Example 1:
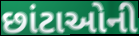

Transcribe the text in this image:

છાંટાઓની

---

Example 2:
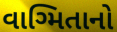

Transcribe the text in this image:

વાગ્મિતાનો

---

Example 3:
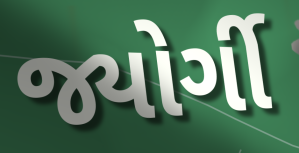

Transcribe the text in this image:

જ્યોર્ગી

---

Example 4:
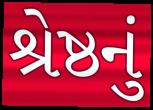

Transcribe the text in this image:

શ્રેષ્ઠનું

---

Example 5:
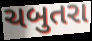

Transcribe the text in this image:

ચબુતરા